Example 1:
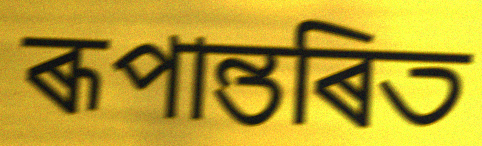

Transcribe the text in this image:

ৰূপান্তৰিত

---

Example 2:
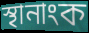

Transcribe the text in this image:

স্থানাংক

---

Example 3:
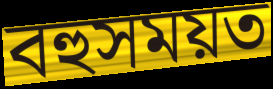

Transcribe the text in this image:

বহুসময়ত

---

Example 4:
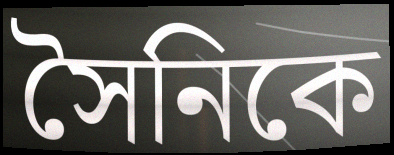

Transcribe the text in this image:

সৈনিকে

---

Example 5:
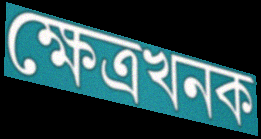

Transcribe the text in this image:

ক্ষেত্ৰখনক